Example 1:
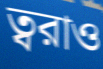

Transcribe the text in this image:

ত্বরাও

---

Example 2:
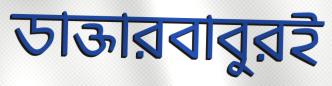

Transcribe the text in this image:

ডাক্তারবাবুরই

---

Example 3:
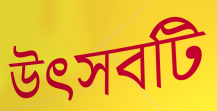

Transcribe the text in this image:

উৎসবটি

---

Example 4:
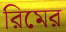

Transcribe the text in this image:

রিমের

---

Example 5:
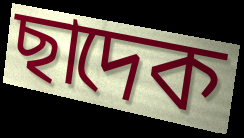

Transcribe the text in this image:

ছাদেক